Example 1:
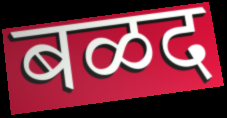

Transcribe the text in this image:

बळद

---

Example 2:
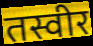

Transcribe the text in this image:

तस्वीर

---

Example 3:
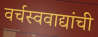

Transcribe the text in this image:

वर्चस्ववाद्यांची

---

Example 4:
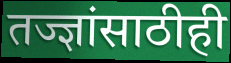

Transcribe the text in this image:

तज्ज्ञांसाठीही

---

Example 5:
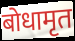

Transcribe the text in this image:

बोधामृत